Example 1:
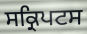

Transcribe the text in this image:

ਸਕ੍ਰਿਪਟਸ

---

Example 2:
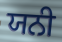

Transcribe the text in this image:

ਯਨੀ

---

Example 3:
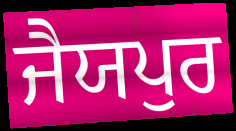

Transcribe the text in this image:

ਜੈਯਪੁਰ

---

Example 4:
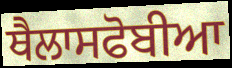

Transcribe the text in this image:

ਥੈਲਾਸਫੋਬੀਆ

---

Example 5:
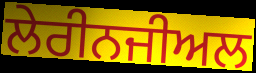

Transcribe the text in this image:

ਲੇਰੀਨਜੀਅਲ